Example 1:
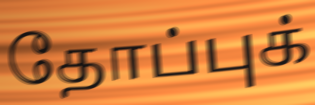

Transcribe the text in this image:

தோப்புக்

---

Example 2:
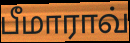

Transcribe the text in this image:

பீமாராவ்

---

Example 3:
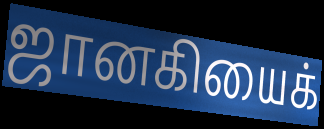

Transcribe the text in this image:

ஜானகியைக்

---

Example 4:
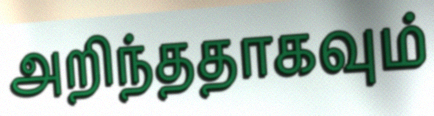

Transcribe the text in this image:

அறிந்ததாகவும்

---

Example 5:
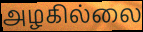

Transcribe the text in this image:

அழகில்லை